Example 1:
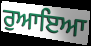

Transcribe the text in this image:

ਰੁਆਇਆ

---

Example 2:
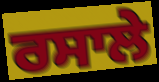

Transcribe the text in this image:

ਰਸਾਲੇ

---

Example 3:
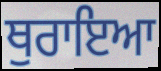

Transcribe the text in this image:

ਥੁਰਾਇਆ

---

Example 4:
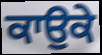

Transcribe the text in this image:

ਕਾਉਕੇ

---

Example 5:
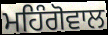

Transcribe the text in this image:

ਮਹਿੰਗੋਵਾਲ